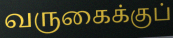
வருகைக்குப்